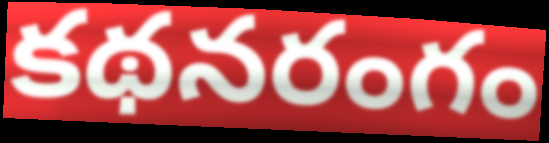
కథనరంగం